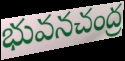
భువనచంద్ర